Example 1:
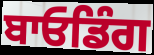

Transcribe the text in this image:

ਬਾਓਡਿੰਗ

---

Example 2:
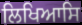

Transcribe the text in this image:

ਲਿਖਿਆਸਿ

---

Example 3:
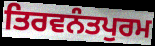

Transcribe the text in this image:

ਤਿਰਵਨੰਤਪੁਰਮ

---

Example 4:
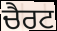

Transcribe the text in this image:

ਚੈਰਟ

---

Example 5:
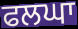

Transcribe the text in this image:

ਫਲਘਾ